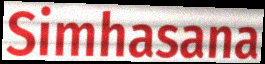
Simhasana